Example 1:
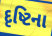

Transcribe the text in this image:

દૃષ્ટિના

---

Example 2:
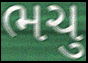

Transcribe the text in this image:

ભચુ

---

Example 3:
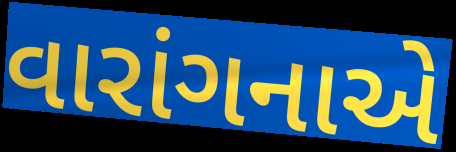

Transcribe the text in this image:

વારાંગનાએ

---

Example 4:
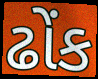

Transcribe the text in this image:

ઢોંક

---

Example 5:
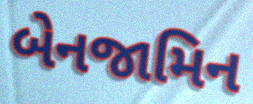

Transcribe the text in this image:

બેનજામિન